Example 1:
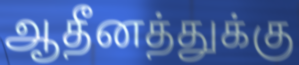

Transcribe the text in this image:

ஆதீனத்துக்கு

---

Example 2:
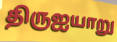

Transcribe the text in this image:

திருஐயாறு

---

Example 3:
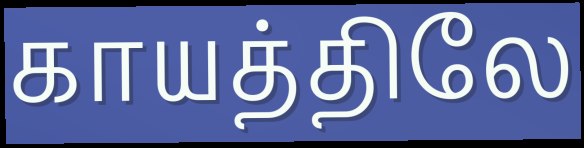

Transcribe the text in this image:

காயத்திலே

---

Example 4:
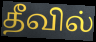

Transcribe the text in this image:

தீவில்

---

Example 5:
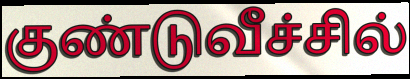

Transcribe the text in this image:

குண்டுவீச்சில்